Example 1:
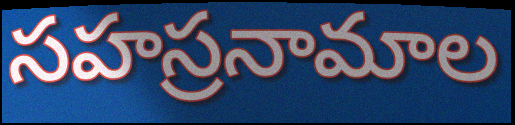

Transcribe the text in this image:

సహస్రనామాల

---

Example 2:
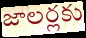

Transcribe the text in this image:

జాలర్లకు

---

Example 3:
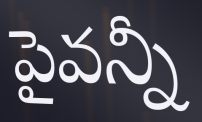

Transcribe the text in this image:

పైవన్నీ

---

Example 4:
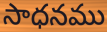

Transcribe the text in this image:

సాధనము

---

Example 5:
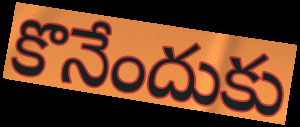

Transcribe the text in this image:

కొనేందుకు